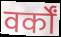
वर्कों